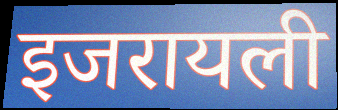
इजरायली